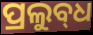
ପ୍ରଲୁବ୍‌ଧ